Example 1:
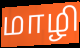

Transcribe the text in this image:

மாழி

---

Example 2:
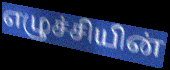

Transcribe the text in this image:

எழுச்சியின்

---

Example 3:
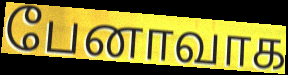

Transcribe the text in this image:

பேனாவாக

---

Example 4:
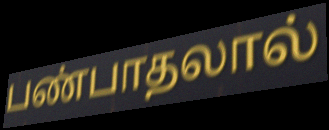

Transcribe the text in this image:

பண்பாதலால்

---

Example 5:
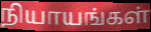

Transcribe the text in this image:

நியாயங்கள்